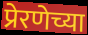
प्रेरणेच्या